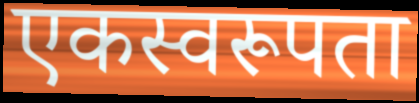
एकस्वरूपता